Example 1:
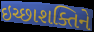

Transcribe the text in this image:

ઇચ્છાશક્તિને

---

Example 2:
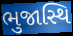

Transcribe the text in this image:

ભુજાસ્થિ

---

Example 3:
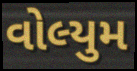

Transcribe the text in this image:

વોલ્યુમ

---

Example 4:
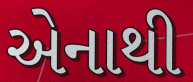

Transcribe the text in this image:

એનાથી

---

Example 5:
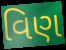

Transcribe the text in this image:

વિણ